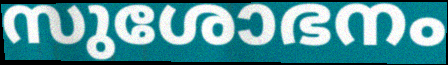
സുശോഭനം